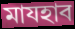
মাযহাব